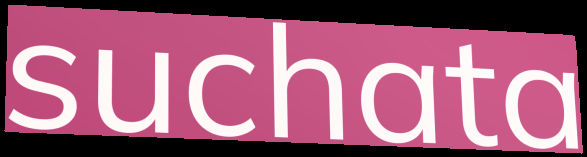
suchata